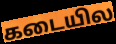
கடையில